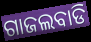
ଗାଜଲବାଡି